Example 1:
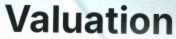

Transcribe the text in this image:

Valuation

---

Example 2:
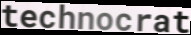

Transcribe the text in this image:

technocrat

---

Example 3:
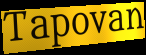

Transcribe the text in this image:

Tapovan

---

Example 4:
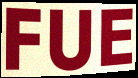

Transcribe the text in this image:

FUE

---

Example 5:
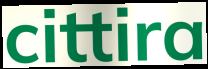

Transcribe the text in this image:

cittira